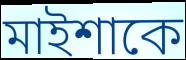
মাইশাকে